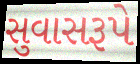
સુવાસરૂપે